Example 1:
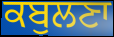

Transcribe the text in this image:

ਕਬੁਲਣਾ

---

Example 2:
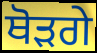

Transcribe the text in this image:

ਥੋੜਗੇ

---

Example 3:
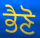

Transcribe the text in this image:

ਭੈਣੋ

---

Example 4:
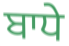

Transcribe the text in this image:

ਬਾਧੇ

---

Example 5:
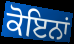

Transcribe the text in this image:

ਕੋਇਨਾਂ